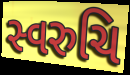
સ્વરુચિ